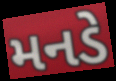
મનડે